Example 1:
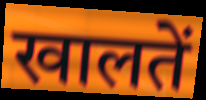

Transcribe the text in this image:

खालतें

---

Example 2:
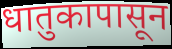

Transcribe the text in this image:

धातुकापासून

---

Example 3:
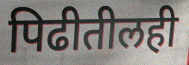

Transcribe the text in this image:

पिढीतीलही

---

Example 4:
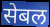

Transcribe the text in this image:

सेबल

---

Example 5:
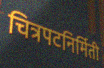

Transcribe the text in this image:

चित्रपटनिर्मिती